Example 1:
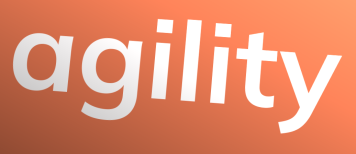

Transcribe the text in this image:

agility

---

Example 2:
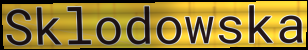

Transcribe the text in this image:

Sklodowska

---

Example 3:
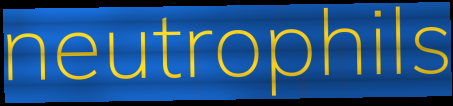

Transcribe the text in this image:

neutrophils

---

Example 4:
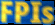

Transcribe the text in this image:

FPIs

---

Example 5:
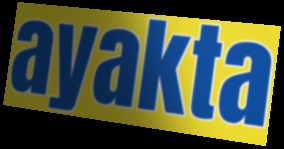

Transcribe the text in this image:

ayakta